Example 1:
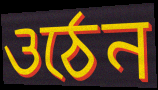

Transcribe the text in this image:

ওঠেন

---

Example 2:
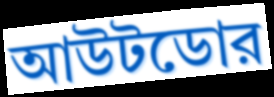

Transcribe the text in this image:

আউটডোর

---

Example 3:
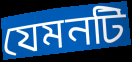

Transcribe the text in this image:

যেমনটি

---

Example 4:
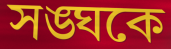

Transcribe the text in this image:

সঙ্ঘকে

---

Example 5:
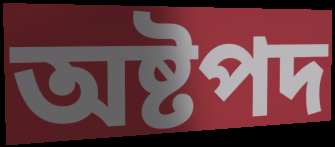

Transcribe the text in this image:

অষ্টপদ